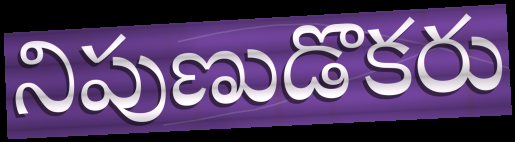
నిపుణుడొకరు